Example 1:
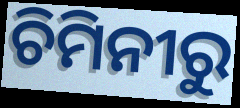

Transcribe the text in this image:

ଚିମିନୀରୁ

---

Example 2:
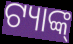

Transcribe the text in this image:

ଟ୍ୟାଙ୍କ୍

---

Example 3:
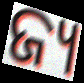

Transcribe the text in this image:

ଜ୍ୟ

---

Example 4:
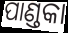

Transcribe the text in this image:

ପାଣ୍ଡକା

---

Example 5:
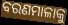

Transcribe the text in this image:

ବରଣମାଳାକୁ